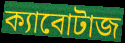
ক্যাবোটাজ